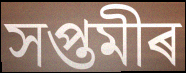
সপ্তমীৰ